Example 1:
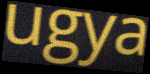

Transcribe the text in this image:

ugya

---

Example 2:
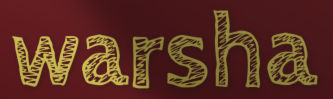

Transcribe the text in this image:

warsha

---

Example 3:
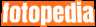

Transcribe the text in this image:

fotopedia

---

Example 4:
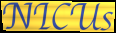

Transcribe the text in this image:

NICUs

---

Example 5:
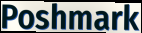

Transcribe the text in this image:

Poshmark